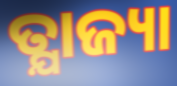
ତ୍ଯାଜ୍ୟା